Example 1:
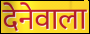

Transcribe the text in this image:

देनेवाला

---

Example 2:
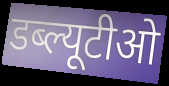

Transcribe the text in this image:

डब्ल्यूटीओ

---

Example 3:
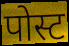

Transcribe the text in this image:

पोस्ट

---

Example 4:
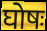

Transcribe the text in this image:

घोषः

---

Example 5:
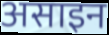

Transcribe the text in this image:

असाइन